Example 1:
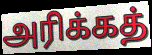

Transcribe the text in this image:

அரிக்கத்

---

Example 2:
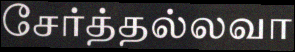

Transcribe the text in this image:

சேர்த்தல்லவா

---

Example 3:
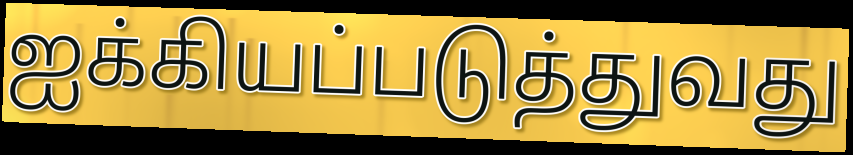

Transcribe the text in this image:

ஐக்கியப்படுத்துவது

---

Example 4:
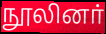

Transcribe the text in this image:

நூலினர்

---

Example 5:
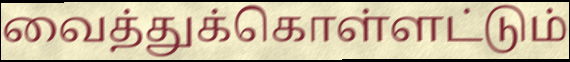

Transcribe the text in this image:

வைத்துக்கொள்ளட்டும்